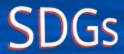
SDGs